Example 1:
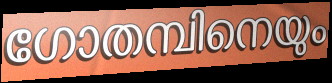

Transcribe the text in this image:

ഗോതമ്പിനെയും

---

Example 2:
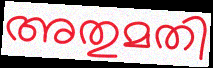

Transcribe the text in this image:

അതുമതി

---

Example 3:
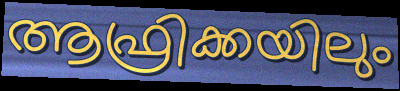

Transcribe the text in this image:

ആഫ്രിക്കയിലും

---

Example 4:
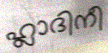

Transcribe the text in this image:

ഹ്ലാദിനീ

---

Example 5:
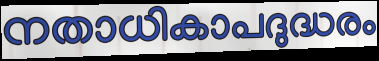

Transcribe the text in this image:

നതാധികാപദുദ്ധരം